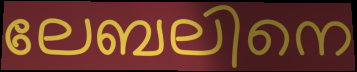
ലേബലിനെ